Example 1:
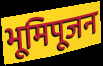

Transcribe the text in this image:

भूमिपूजन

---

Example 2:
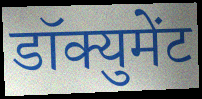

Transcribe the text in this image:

डॉक्युमेंट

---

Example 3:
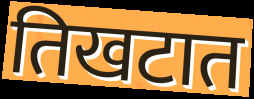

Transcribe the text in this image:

तिखटात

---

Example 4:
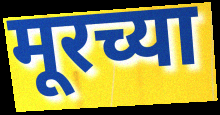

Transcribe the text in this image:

मूरच्या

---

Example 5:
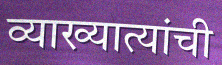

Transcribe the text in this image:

व्याख्यात्यांची